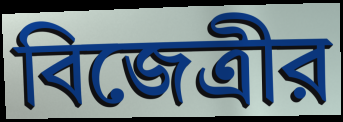
বিজেত্রীর